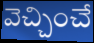
వెచ్చించే